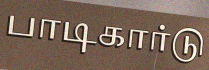
பாடிகார்டு